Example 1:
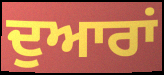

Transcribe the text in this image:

ਦੁਆਰਾਂ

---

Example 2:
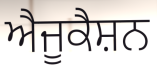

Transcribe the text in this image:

ਐਜੂਕੈਸ਼ਨ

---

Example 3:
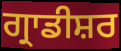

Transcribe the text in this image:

ਗ੍ਰਾਡੀਸ਼ਰ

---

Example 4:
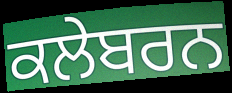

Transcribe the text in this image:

ਕਲੇਬਰਨ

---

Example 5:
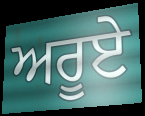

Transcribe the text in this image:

ਅਰੂਏ